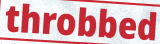
throbbed